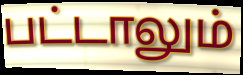
பட்டாலும்